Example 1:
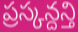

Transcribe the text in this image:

ప్రస్కన్దన్తి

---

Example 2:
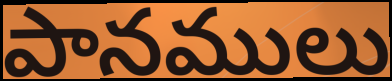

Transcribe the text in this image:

పానములు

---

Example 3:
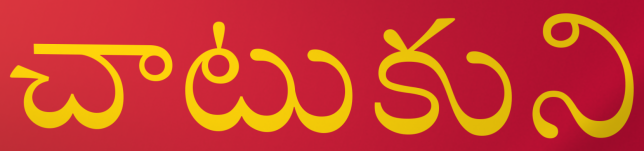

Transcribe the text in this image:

చాటుకుని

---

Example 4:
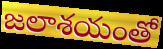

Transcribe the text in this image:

జలాశయంతో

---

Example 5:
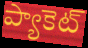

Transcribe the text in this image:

ప్యాకెట్